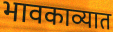
भावकाव्यात